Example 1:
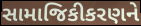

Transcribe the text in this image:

સામાજિકીકરણને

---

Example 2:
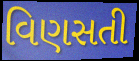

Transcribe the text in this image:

વિણસતી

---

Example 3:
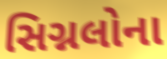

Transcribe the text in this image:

સિગ્નલોના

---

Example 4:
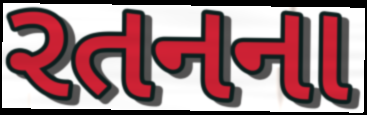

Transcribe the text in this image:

રતનના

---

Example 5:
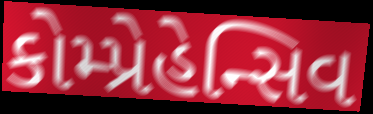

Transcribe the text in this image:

કોમ્પ્રેહેન્સિવ